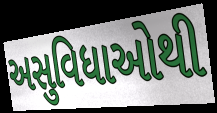
અસુવિધાઓથી